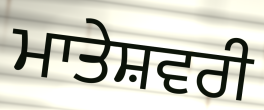
ਮਾਤੇਸ਼ਵਰੀ